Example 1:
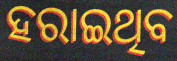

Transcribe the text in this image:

ହରାଇଥିବ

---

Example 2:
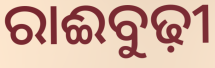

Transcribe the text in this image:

ରାଈବୁଢ଼ୀ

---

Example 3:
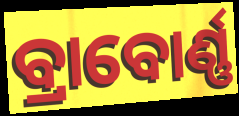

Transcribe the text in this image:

ବ୍ରାବୋର୍ଣ୍ଣ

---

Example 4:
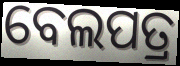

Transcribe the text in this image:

ବେଲପତ୍ର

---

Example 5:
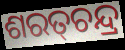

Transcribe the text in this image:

ଶରତ୍‌ଚନ୍ଦ୍ର